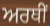
ਅਰਥੀਂ